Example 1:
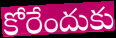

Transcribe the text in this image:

కోరేందుకు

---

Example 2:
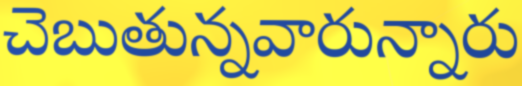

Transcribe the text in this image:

చెబుతున్నవారున్నారు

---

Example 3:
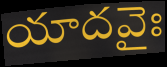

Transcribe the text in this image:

యాదవైః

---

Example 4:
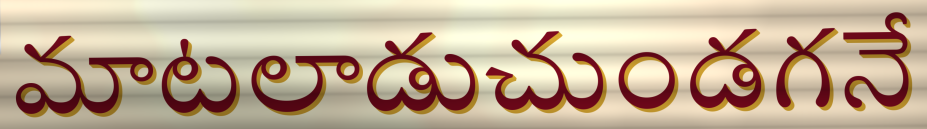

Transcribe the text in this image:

మాటలాడుచుండగనే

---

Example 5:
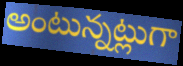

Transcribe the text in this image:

అంటున్నట్లుగా